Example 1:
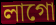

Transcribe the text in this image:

লাগো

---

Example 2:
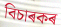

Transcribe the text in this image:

বিচাৰকৰ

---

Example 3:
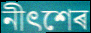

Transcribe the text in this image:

নীৎশেৰ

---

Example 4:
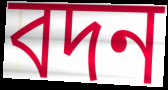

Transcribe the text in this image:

বদন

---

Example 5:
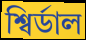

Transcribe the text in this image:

শ্বিৰ্ডাল